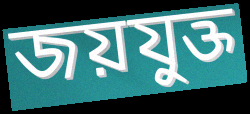
জয়যুক্ত